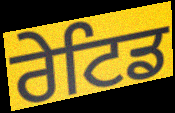
ਰੇਟਿਡ